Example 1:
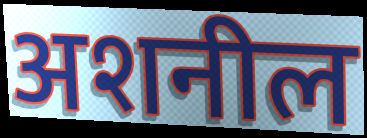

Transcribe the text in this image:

अशनील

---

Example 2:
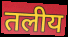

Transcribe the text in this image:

तलीय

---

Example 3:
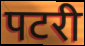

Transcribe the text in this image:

पटरी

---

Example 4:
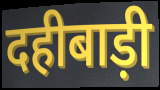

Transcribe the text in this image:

दहीबाड़ी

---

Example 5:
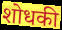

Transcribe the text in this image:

शोधकी